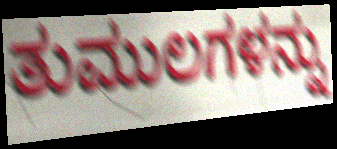
ತುಮುಲಗಳನ್ನು